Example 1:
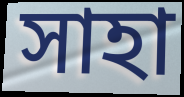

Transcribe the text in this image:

সাহা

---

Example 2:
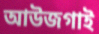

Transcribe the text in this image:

আউজগাই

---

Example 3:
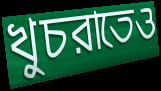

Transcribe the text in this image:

খুচরাতেও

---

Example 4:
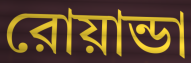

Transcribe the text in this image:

রোয়ান্ডা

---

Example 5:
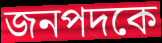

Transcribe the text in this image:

জনপদকে